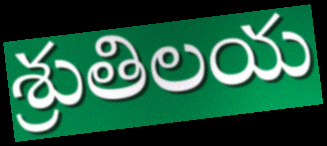
శ్రుతిలయ